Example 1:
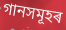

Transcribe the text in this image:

গানসমূহৰ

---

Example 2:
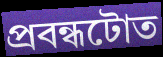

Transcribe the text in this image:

প্ৰবন্ধটোত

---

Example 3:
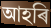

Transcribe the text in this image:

আহৰি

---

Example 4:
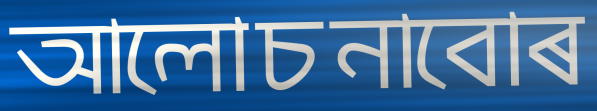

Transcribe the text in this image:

আলোচনাবোৰ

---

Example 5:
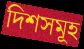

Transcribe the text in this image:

দিশসমূহ